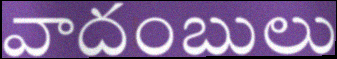
వాదంబులు